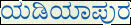
ಯಡಿಯಾಪುರ